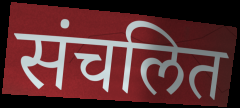
संचलित